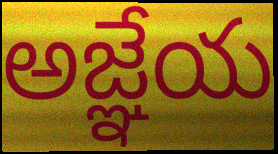
అజ్ఞేయ